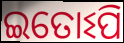
ଇତୋଽପି